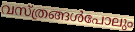
വസ്ത്രങ്ങൾപോലും